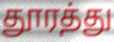
தூரத்து